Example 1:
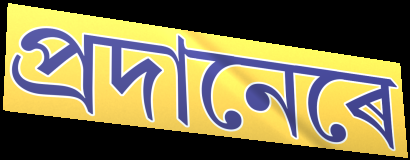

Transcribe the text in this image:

প্ৰদানেৰে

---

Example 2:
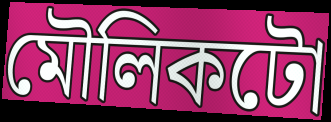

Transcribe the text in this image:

মৌলিকটো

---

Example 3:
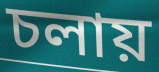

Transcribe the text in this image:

চলায়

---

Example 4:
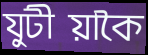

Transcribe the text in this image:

যুটীয়াকৈ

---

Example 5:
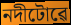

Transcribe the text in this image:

নদীটোৱে